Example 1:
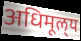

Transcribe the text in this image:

अधिमूल्य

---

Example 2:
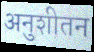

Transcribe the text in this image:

अनुशीतन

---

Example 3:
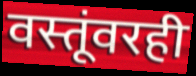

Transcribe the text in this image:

वस्तूंवरही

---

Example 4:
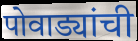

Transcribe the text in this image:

पोवाड्यांची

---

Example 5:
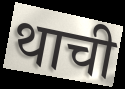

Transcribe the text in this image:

थाची